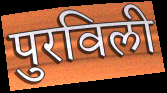
पुरविली